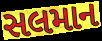
સલમાન